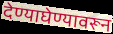
देण्याघेण्यावरून